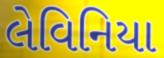
લેવિનિયા